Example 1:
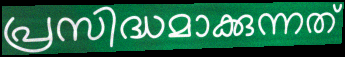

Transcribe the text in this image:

പ്രസിദ്ധമാക്കുന്നത്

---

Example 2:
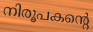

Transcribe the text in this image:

നിരൂപകന്റെ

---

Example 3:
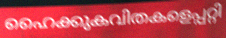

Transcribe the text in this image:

ഹൈക്കുകവിതകളെപ്പറ്റി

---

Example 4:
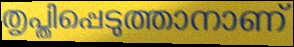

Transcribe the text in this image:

തൃപ്തിപ്പെടുത്താനാണ്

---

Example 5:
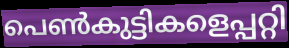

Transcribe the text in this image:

പെൺകുട്ടികളെപ്പറ്റി